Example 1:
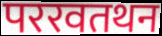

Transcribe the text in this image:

पररवतथन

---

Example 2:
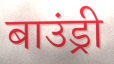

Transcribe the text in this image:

बाउंड्री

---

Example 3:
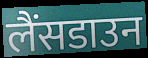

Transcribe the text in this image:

लैंसडाउन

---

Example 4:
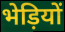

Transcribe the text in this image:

भेड़ियों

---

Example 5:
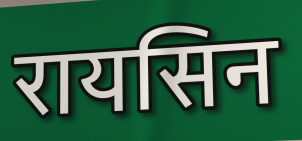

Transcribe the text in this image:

रायसिन